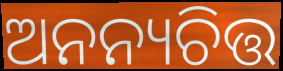
ଅନନ୍ୟଚିତ୍ତ